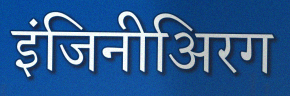
इंजिनीअिरग